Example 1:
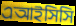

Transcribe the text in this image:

এআইসিসি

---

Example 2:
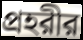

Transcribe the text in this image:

প্রহরীর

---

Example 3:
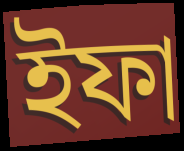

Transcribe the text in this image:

ইফা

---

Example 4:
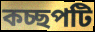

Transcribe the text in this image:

কচ্ছপটি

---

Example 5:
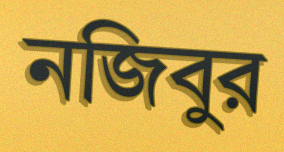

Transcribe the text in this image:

নজিবুর